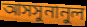
আসসুনানুল